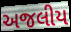
અજલીય